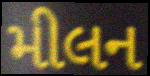
મીલન